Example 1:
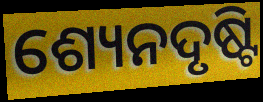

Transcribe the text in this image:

ଶ୍ୟେନଦୃଷ୍ଟି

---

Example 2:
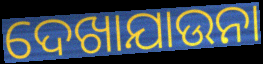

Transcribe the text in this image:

ଦେଖାଯାଉନା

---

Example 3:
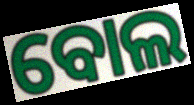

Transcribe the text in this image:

ବୋଲ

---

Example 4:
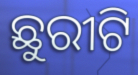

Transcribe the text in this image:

ଛୁରୀଟି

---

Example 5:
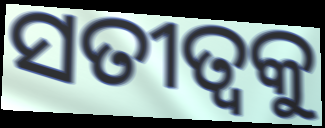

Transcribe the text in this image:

ସତୀତ୍ୱକୁ